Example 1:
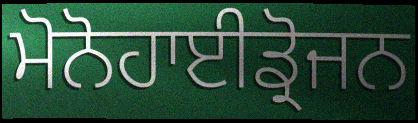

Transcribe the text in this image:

ਮੋਨੋਹਾਈਡ੍ਰੋਜਨ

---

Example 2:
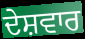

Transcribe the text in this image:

ਦੇਸ਼ਵਾਰ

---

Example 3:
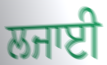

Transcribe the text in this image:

ਲਜਾਈ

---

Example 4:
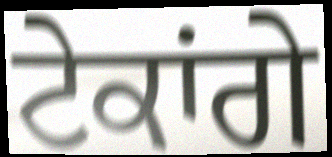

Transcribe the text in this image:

ਟੇਕਾਂਗੇ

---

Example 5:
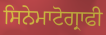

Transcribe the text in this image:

ਸਿਨੇਮਾਟੋਗ੍ਰਾਫੀ